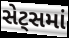
સેટ્સમાં